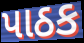
પાઠક